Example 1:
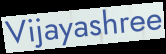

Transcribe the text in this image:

Vijayashree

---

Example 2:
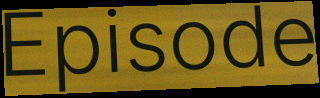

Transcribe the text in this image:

Episode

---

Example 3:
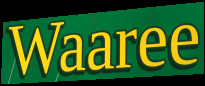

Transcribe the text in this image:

Waaree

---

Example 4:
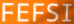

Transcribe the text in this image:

FEFSI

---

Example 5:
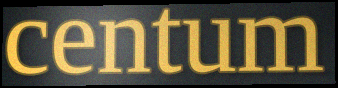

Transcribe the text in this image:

centum